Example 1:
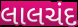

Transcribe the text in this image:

લાલચંદ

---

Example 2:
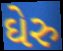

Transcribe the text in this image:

ઘેરુ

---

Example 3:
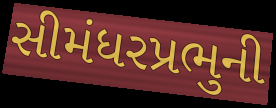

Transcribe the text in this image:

સીમંધરપ્રભુની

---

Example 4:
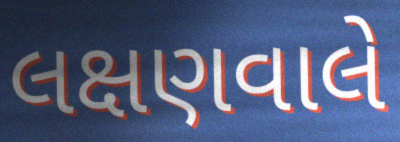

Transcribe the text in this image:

લક્ષણવાલે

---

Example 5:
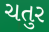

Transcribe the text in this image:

ચતુર